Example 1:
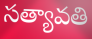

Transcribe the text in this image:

సత్యావతి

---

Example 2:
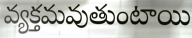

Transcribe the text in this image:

వ్యక్తమవుతుంటాయి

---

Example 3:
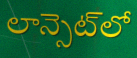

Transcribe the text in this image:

లాన్సెట్‌లో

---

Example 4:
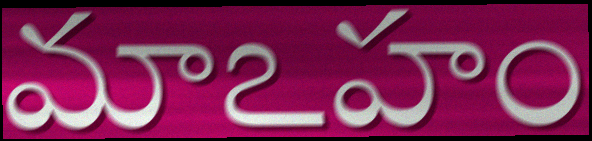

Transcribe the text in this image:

మాఽహం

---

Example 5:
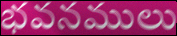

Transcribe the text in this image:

భవనములు